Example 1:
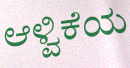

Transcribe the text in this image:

ಆಳ್ವಿಕೆಯ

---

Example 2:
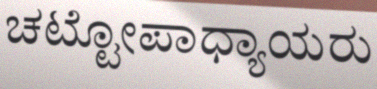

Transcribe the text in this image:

ಚಟ್ಟೋಪಾಧ್ಯಾಯರು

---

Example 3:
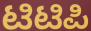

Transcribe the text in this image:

ಟಿಟಿಪಿ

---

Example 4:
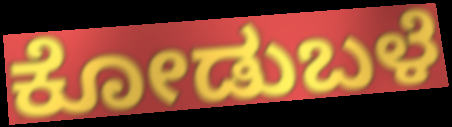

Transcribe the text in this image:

ಕೋಡುಬಳೆ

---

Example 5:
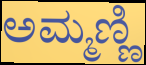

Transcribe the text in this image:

ಅಮ್ಮಣ್ಣಿ